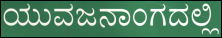
ಯುವಜನಾಂಗದಲ್ಲಿ